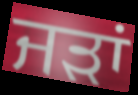
ਜੜਾਂ